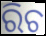
ରିଚ